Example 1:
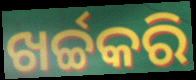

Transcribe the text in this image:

ଖର୍ଚ୍ଚକରି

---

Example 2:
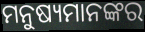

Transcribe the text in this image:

ମନୁଷ୍ଯମାନଙ୍କର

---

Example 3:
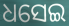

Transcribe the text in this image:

ଧସେଇ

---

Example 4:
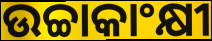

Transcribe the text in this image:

ଉଚ୍ଚାକାଂକ୍ଷୀ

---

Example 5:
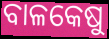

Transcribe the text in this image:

ବାଳକେଷୁ